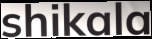
shikala